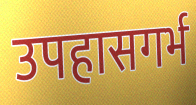
उपहासगर्भ